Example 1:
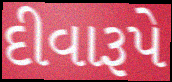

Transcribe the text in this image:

દીવારૂપે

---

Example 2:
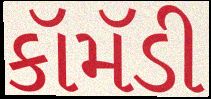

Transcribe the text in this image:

કૉમૅડી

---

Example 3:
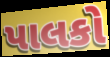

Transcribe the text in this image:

પાલકો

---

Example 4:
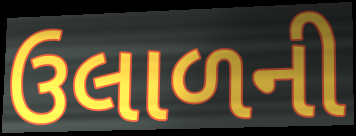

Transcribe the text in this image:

ઉલાળની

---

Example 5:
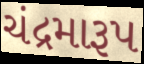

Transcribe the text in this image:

ચંદ્રમારૂપ